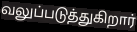
வலுப்படுத்துகிறார்